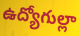
ఉద్యోగుల్లా